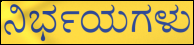
ನಿರ್ಭಯಗಳು